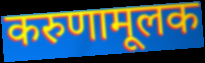
करुणामूलक